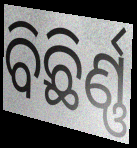
ବିଛିର୍ଣ୍ଣ